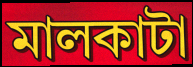
মালকাটা